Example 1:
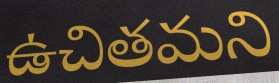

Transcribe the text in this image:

ఉచితమని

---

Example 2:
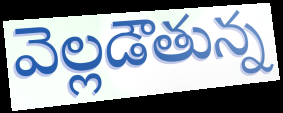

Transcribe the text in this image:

వెల్లడౌతున్న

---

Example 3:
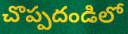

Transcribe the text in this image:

చొప్పదండిలో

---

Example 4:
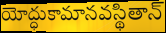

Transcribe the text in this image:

యోద్ధుకామానవస్థితాన్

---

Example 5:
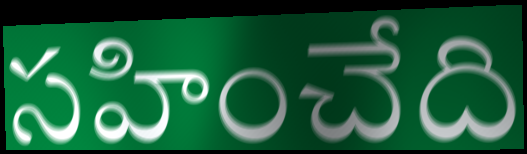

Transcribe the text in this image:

సహించేది